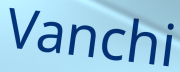
Vanchi